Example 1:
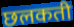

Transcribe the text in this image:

छलकती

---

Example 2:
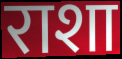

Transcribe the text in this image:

राशा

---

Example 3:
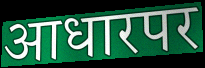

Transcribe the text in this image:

आधारपर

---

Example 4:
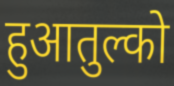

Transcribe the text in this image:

हुआतुल्को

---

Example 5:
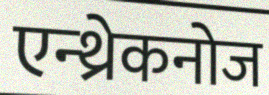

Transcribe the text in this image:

एन्थ्रेकनोज